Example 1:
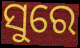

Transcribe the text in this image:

ସୁରେ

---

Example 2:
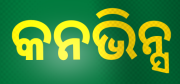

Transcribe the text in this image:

କନଭିନ୍ସ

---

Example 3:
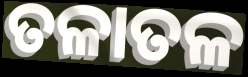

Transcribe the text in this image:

ତଳାତଳ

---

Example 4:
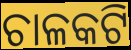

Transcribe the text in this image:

ଚାଳକଟି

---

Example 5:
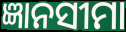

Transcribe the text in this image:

ଜ୍ଞାନସୀମା